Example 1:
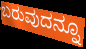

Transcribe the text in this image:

ಬರುವುದನ್ನೂ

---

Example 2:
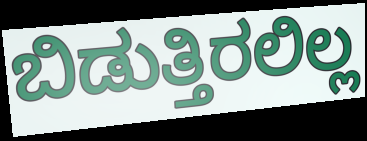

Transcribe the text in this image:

ಬಿಡುತ್ತಿರಲಿಲ್ಲ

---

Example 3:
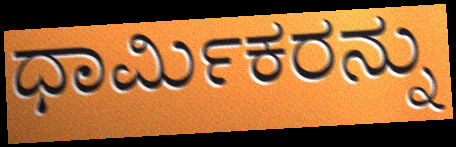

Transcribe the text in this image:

ಧಾರ್ಮಿಕರನ್ನು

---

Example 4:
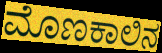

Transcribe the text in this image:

ಮೊಣಕಾಲಿನ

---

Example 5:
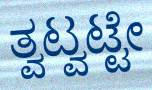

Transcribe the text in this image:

ತ್ವಟ್ವಟ್ಟೇ